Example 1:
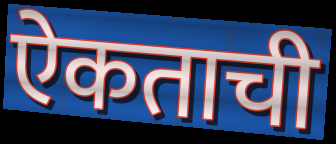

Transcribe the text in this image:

ऐकताची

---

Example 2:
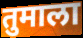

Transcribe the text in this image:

तुमाला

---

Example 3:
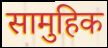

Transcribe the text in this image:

सामुहिक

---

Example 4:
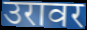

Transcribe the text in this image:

उरावर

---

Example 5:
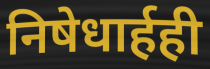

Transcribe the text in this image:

निषेधार्हही